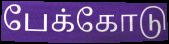
பேக்கோடு